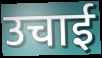
उचाई